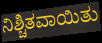
ನಿಶ್ಚಿತವಾಯಿತು